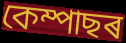
কেম্পাছৰ